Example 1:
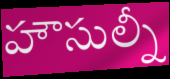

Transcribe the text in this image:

హౌసుల్నీ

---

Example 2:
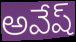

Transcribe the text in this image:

అవేష్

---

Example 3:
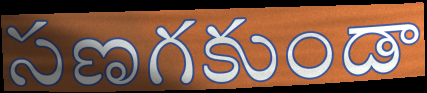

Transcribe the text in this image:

సణగకుండా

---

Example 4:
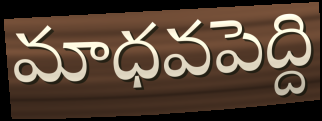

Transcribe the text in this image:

మాధవపెద్ది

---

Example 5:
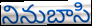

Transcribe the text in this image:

నినుబాసి